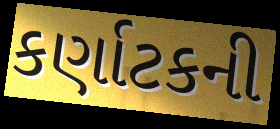
કર્ણાટકની